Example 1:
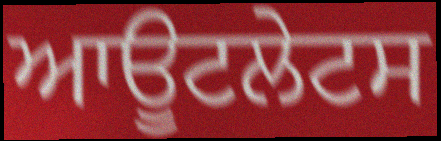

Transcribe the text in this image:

ਆਊਟਲੇਟਸ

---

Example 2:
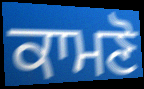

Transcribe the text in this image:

ਕਾਮਣੋ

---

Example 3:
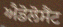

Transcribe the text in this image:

ਐਡੋਲੋਸੈਂਟ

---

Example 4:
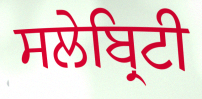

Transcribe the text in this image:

ਸਲੇਬ੍ਰਿਟੀ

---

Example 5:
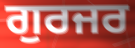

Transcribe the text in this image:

ਗੁਰਜਰ